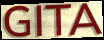
GITA